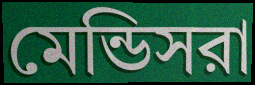
মেন্ডিসরা